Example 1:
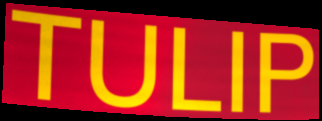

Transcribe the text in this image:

TULIP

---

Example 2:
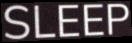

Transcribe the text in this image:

SLEEP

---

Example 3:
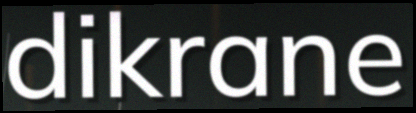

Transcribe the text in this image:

dikrane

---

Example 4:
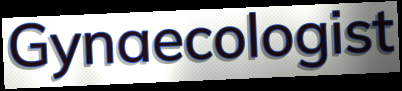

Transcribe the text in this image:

Gynaecologist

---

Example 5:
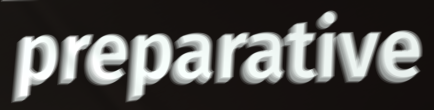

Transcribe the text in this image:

preparative